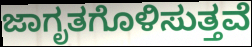
ಜಾಗೃತಗೊಳಿಸುತ್ತವೆ